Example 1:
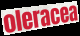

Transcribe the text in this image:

oleracea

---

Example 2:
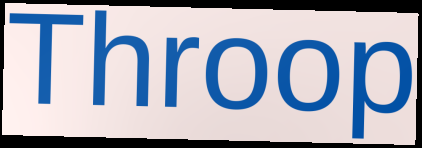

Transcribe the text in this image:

Throop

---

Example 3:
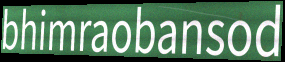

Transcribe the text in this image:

bhimraobansod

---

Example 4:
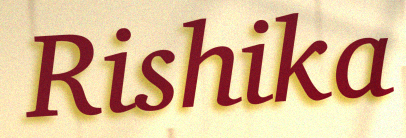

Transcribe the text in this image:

Rishika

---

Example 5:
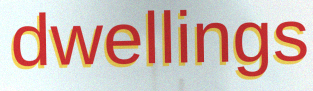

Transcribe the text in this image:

dwellings